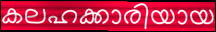
കലഹക്കാരിയായ